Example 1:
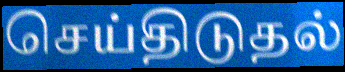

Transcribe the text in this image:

செய்திடுதல்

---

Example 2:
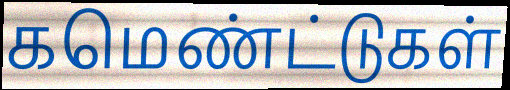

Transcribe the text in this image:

கமெண்ட்டுகள்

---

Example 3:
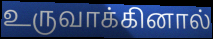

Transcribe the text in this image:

உருவாக்கினால்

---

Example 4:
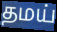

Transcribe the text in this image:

தமய்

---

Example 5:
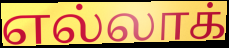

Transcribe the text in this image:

எல்லாக்